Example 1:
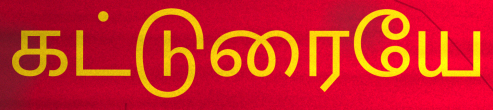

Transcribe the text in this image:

கட்டுரையே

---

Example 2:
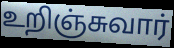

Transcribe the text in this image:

உறிஞ்சுவார்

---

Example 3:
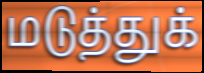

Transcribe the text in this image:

மடுத்துக்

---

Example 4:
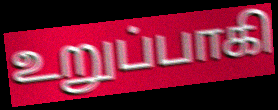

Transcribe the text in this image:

உறுப்பாகி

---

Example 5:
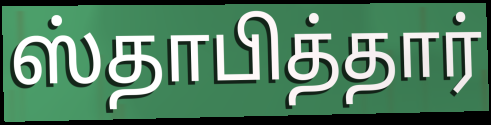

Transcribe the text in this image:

ஸ்தாபித்தார்